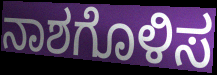
ನಾಶಗೊಳಿಸ